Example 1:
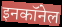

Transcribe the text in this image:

इनकॉनेल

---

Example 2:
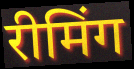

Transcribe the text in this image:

रीमिंग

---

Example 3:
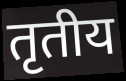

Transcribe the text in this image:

तृतीय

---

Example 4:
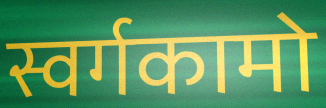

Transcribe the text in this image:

स्वर्गकामो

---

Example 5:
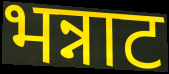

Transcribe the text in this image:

भन्नाट